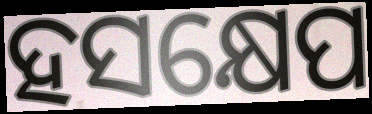
ହସକ୍ଷେପ